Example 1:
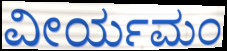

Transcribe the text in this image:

ವೀರ್ಯಮಂ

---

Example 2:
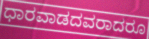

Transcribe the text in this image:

ಧಾರವಾಡದವರಾದರೂ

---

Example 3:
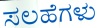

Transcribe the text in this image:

ಸಲಹೆಗಳು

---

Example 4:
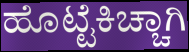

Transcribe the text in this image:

ಹೊಟ್ಟೆಕಿಚ್ಚಾಗಿ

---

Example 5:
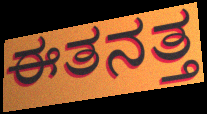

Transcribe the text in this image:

ಈತನತ್ತ